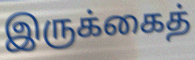
இருக்கைத்